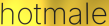
hotmale